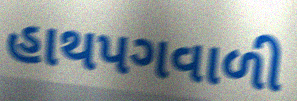
હાથપગવાળી